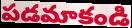
పడమాకండి